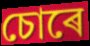
চোৰে